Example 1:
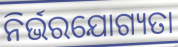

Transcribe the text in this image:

ନିର୍ଭରଯୋଗ୍ୟତା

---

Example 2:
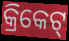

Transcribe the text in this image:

କ୍ରିକେଟ୍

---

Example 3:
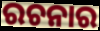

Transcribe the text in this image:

ରଚନାର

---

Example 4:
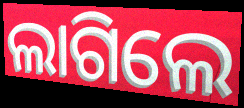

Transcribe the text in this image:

ଲାଗିଲେ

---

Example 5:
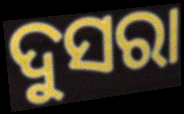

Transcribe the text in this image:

ଦୁସରା